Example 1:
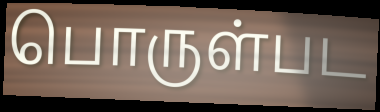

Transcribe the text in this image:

பொருள்பட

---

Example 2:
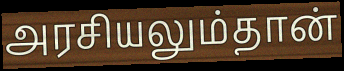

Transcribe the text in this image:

அரசியலும்தான்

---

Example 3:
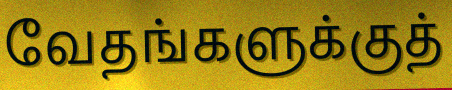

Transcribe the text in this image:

வேதங்களுக்குத்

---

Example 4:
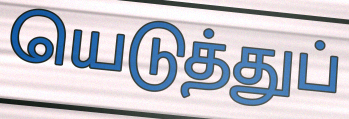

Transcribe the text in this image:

யெடுத்துப்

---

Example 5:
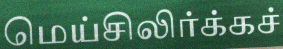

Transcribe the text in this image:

மெய்சிலிர்க்கச்